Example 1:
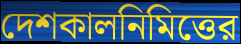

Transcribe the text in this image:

দেশকালনিমিত্তের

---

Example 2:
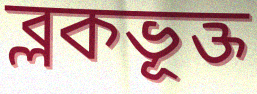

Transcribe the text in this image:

ব্লকভূক্ত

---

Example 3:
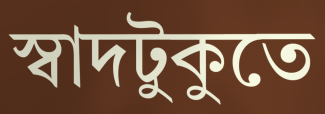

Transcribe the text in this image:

স্বাদটুকুতে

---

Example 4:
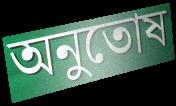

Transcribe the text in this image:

অনুতোষ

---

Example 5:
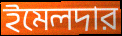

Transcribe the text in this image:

ইমেলদার